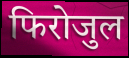
फिरोजुल